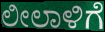
ಲೀಲಾಳಿಗೆ